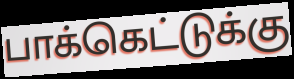
பாக்கெட்டுக்கு